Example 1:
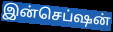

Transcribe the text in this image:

இன்செப்ஷன்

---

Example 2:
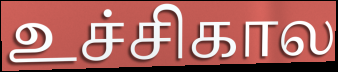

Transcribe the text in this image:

உச்சிகால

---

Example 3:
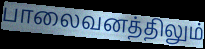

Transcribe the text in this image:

பாலைவனத்திலும்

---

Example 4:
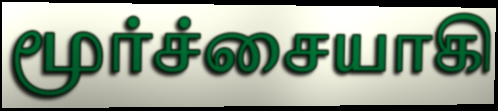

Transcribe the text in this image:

மூர்ச்சையாகி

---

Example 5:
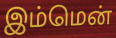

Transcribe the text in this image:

இம்மென்